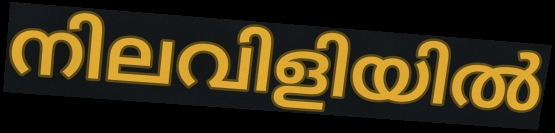
നിലവിളിയിൽ